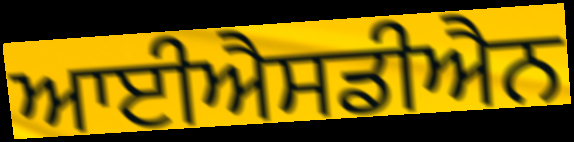
ਆਈਐਸਡੀਐਨ